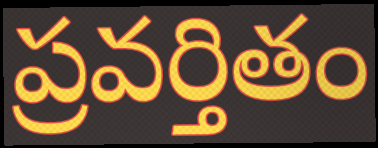
ప్రవర్తితం